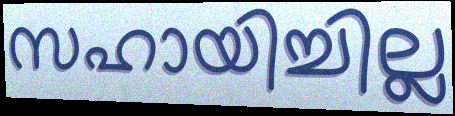
സഹായിച്ചില്ല